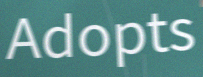
Adopts